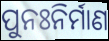
ପୁନଃନିର୍ମାଣ